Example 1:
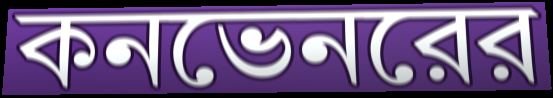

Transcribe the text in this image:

কনভেনরের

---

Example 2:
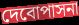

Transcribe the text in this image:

দেবোপাসনা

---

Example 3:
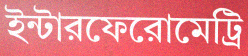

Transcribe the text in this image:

ইন্টারফেরোমেট্রি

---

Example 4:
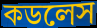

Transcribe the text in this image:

কডলেস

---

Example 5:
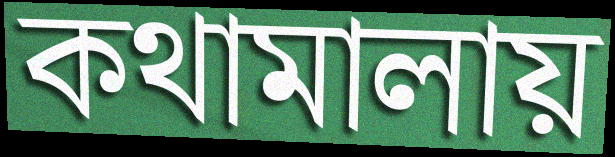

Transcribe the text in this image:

কথামালায়